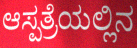
ಆಸ್ಪತ್ರೆಯಲ್ಲಿನ